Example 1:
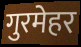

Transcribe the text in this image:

गुरमेहर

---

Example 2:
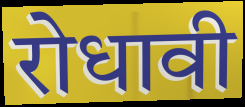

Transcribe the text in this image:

रोधावी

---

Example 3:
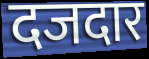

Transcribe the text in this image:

दजदार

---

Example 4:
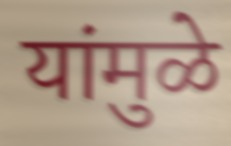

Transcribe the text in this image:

यांमुळे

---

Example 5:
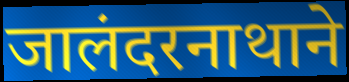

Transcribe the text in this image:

जालंदरनाथाने